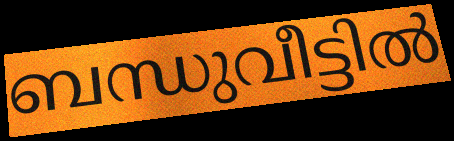
ബന്ധുവീട്ടിൽ